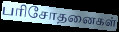
பரிசோதனைகள்